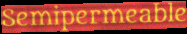
Semipermeable